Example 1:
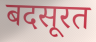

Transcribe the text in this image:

बदसूरत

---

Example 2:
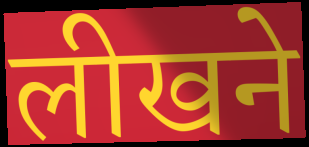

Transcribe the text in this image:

लीखने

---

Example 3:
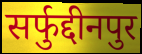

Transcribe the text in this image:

सर्फुद्दीनपुर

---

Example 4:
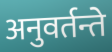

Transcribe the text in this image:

अनुवर्तन्ते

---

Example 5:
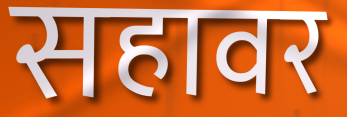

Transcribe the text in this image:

सहावर